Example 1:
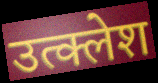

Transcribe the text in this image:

उत्क्लेश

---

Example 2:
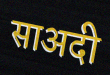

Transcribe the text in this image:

साअदी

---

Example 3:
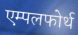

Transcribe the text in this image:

एम्पलफोर्थ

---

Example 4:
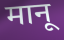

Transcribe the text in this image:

मानू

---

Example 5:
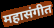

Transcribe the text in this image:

महासंगीत